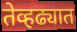
तेव्हढ्यात